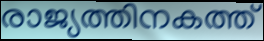
രാജ്യത്തിനകത്ത്